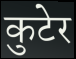
कुटेर